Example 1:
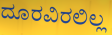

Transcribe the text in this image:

ದೂರವಿರಲಿಲ್ಲ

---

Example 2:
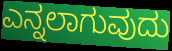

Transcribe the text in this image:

ಎನ್ನಲಾಗುವುದು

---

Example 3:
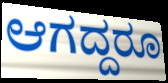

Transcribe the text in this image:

ಆಗದ್ದರೂ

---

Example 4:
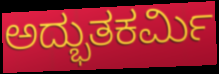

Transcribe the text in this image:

ಅದ್ಭುತಕರ್ಮಿ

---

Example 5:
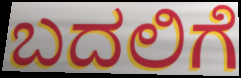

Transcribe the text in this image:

ಬದಲಿಗೆ